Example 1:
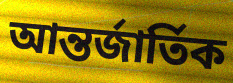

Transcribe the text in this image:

আন্তর্জার্তিক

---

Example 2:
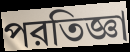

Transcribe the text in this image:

পরতিজ্ঞা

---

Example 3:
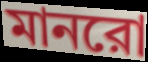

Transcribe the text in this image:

মানরো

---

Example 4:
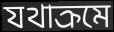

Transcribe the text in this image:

যথাক্রমে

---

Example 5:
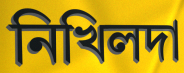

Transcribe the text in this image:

নিখিলদা